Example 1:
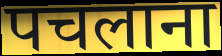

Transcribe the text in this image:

पचलाना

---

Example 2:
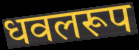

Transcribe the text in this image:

धवलरूप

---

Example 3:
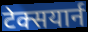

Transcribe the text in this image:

टेक्सयार्न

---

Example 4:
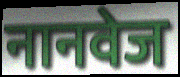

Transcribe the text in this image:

नानवेज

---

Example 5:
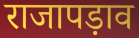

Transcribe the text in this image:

राजापड़ाव